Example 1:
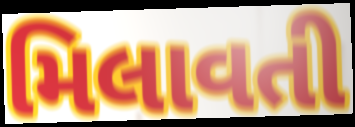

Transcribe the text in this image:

મિલાવતી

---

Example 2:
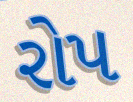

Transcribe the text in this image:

રોપ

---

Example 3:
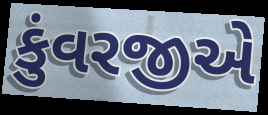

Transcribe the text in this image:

કુંવરજીએ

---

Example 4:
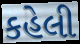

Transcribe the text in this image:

કહેલી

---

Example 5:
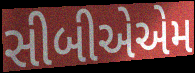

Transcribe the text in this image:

સીબીએએમ